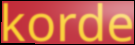
korde